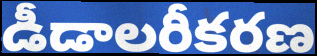
డీడాలరీకరణ